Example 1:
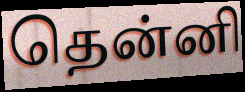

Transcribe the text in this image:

தென்னி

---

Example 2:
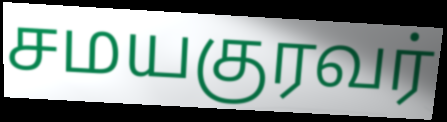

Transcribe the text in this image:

சமயகுரவர்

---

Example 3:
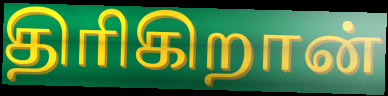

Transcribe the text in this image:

திரிகிறான்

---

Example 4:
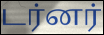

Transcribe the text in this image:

டர்னர்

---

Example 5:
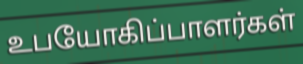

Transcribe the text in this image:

உபயோகிப்பாளர்கள்